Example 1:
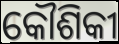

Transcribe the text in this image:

କୌଶିକୀ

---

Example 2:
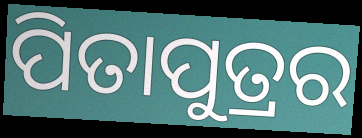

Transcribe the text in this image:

ପିତାପୁତ୍ରର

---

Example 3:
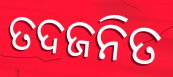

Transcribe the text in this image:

ତଦଜନିତ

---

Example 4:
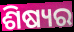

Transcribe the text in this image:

ଶିଷ୍ୟର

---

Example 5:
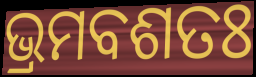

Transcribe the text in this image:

ଭ୍ରମବଶତଃ